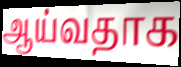
ஆய்வதாக